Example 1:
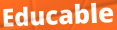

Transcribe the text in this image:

Educable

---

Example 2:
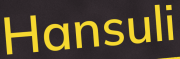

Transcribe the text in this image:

Hansuli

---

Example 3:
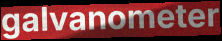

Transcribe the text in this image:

galvanometer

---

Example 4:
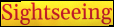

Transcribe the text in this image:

Sightseeing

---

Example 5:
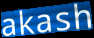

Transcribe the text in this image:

akash